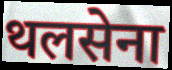
थलसेना